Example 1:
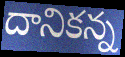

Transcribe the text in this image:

దానికన్న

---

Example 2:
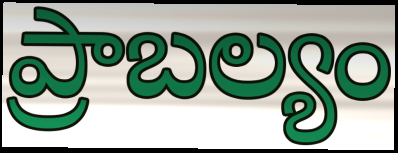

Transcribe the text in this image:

ప్రాబల్యం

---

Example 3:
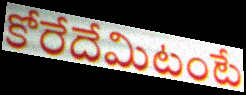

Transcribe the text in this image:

కోరేదేమిటంటే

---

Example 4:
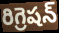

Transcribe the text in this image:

రిగ్రెషన్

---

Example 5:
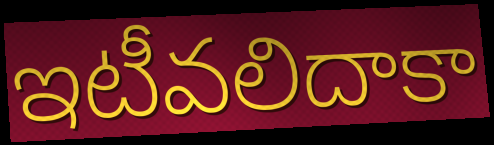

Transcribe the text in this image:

ఇటీవలిదాకా